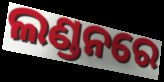
ଲଣ୍ଡନରେ